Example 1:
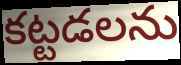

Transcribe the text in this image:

కట్టడలను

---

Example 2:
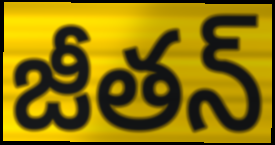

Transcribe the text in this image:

జీతన్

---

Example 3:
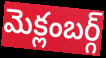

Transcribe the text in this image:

మెక్లంబర్గ్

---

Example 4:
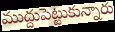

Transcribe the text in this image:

ముద్దుపెట్టుకున్నారు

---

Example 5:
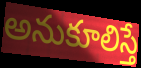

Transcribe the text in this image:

అనుకూలిస్తే